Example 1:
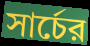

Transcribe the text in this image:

সার্চের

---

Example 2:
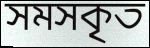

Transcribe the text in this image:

সমসকৃত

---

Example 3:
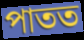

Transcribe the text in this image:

পাতত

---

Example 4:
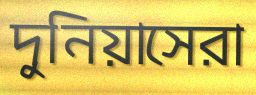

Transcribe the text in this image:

দুনিয়াসেরা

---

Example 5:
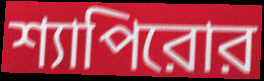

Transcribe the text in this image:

শ্যাপিরোর